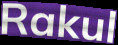
Rakul